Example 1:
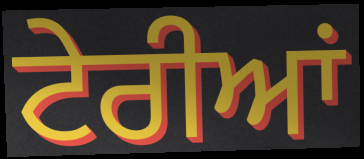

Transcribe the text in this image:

ਟੇਰੀਆਂ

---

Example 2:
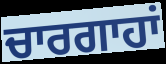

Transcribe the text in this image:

ਚਾਰਗਾਹਾਂ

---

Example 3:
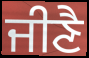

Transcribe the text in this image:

ਜੀਣੈ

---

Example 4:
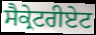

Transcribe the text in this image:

ਸੈਕ੍ਰੇਟਰੀਏਟ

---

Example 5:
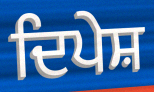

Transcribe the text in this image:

ਦਿਪੇਸ਼